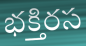
భక్తిరస